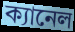
ক্যানেল